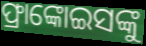
ଫ୍ରାଙ୍କୋଇସଙ୍କୁ